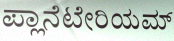
ಪ್ಲಾನೆಟೇರಿಯಮ್